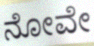
ನೋವೇ